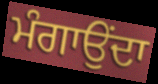
ਮੰਗਾਉਂਦਾ